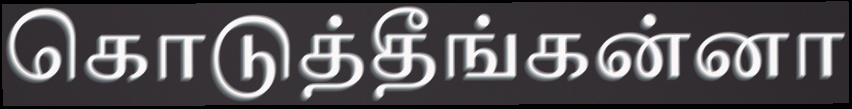
கொடுத்தீங்கன்னா